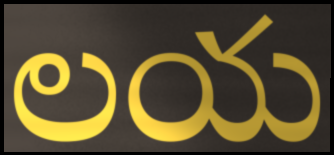
లయ